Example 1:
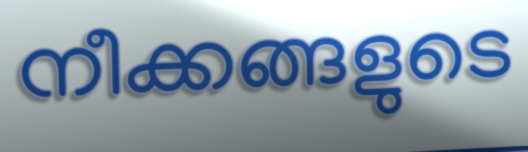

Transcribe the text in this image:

നീക്കങ്ങളുടെ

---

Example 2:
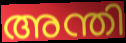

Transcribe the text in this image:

അന്തി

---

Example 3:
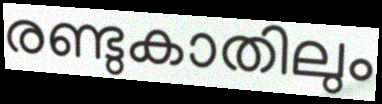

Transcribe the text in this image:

രണ്ടുകാതിലും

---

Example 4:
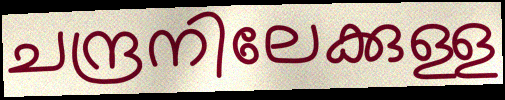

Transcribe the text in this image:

ചന്ദ്രനിലേക്കുള്ള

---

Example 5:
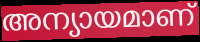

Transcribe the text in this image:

അന്യായമാണ്